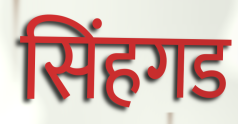
सिंहगड